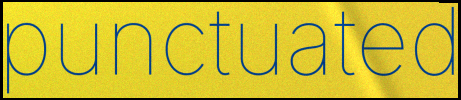
punctuated